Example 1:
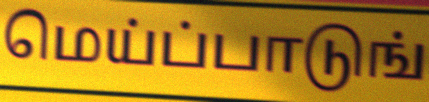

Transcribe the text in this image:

மெய்ப்பாடுங்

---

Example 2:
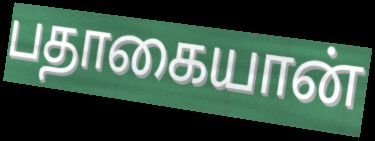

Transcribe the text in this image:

பதாகையான்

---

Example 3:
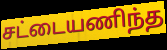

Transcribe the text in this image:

சட்டையணிந்த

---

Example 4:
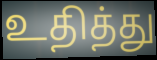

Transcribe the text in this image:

உதித்து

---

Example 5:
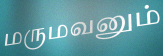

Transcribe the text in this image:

மருமவனும்